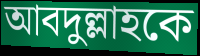
আবদুল্লাহকে